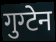
गुग्टेन